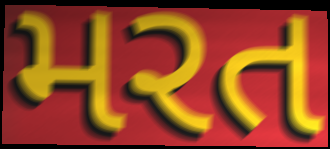
મરત